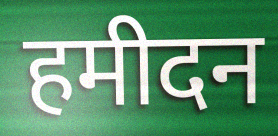
हमीदन